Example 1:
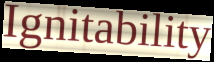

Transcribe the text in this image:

Ignitability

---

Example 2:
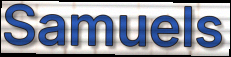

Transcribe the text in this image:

Samuels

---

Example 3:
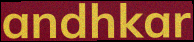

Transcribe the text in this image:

andhkar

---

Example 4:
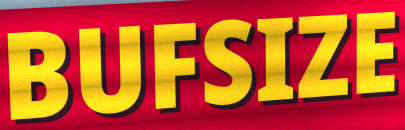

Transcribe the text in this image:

BUFSIZE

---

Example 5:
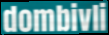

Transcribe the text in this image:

dombivli